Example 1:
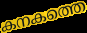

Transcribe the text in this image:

കനകത്തെ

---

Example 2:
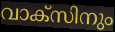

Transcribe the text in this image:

വാക്സിനും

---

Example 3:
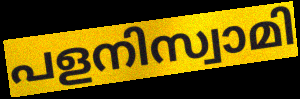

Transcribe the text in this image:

പളനിസ്വാമി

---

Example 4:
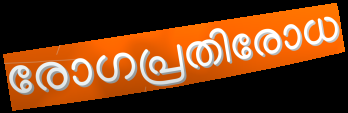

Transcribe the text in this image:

രോഗപ്രതിരോധ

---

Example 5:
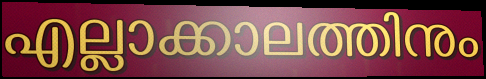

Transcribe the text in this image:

എല്ലാക്കാലത്തിനും